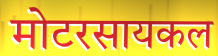
मोटरसायकल